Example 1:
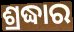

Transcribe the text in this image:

ଶ୍ରଦ୍ଧାର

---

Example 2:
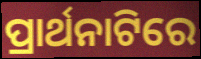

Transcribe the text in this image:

ପ୍ରାର୍ଥନାଟିରେ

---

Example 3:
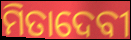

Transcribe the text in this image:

ମିତାଦେବୀ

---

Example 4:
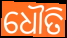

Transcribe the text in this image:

ଧୌତି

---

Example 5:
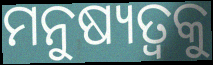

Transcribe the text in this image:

ମନୁଷ୍ୟତ୍ୱକୁ